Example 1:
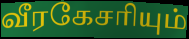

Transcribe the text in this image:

வீரகேசரியும்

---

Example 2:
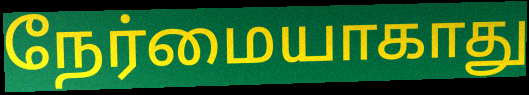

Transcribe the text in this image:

நேர்மையாகாது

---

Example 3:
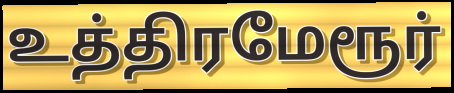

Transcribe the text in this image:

உத்திரமேரூர்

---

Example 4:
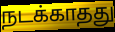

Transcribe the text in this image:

நடக்காதது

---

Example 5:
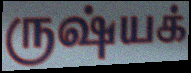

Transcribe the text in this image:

ருஷ்யக்